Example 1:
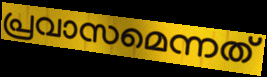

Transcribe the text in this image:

പ്രവാസമെന്നത്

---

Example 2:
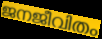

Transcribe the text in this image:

ജനജീവിതം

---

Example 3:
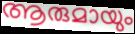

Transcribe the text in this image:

ആരുമായും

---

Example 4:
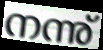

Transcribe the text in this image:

നന്നു്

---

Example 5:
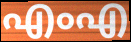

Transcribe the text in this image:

എംഎ